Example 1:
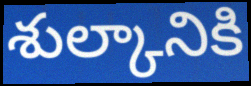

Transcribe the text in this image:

శుల్కానికి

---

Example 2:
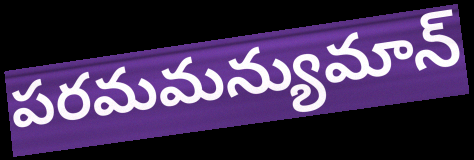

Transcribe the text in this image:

పరమమన్యుమాన్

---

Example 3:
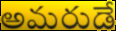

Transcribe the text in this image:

అమరుడే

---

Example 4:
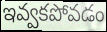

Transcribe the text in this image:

ఇవ్వకపోవడం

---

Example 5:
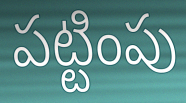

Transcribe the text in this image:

పట్టింపు